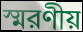
স্মরণীয়